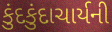
કુંદકુંદાચાર્યની